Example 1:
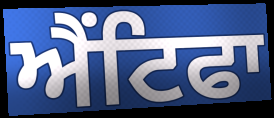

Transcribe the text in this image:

ਐਂਟਿਫਾ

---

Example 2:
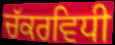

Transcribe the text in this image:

ਚੱਕਰਵਿਧੀ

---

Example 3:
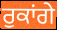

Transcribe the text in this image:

ਰੁਕਾਂਗੇ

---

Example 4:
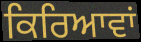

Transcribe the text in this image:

ਕਿਰਿਆਵਾਂ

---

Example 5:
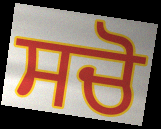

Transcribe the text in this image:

ਸਚੋ